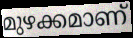
മുഴക്കമാണ്